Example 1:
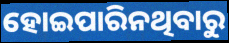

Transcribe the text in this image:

ହୋଇପାରିନଥିବାରୁ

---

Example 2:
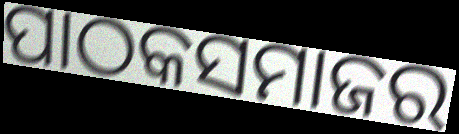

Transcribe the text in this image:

ପାଠକସମାଜର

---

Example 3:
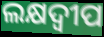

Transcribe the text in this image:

ଲକ୍ଷଦ୍ୱୀପ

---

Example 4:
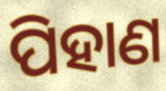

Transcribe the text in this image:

ପିହାଣ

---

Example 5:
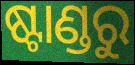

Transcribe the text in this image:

ଷ୍ଟାଣ୍ଡରୁ